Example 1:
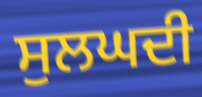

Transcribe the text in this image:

ਸੁਲਘਦੀ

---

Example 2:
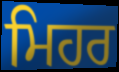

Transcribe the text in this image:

ਮਿਹਰ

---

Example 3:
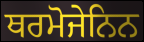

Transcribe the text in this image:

ਥਰਮੋਜੇਨਿਨ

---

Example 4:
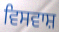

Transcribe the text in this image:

ਵਿਸਵਾਸ਼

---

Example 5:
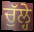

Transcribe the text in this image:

ਚੁੱਲ੍ਹੇ